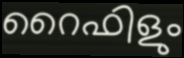
റൈഫിളും